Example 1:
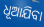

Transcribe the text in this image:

ଧୂଆଯିବା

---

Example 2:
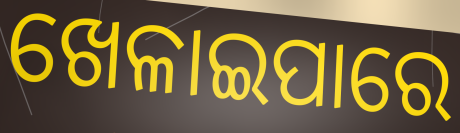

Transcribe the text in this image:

ଖେଳାଇପାରେ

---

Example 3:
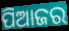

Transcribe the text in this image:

ପିଆଜର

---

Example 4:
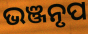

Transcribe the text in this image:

ଭଞ୍ଜନୃପ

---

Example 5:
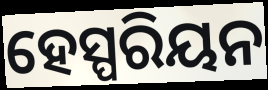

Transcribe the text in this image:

ହେସ୍ପରିୟନ